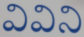
వివిని